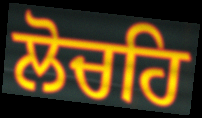
ਲੋਚਹਿ